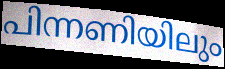
പിന്നണിയിലും